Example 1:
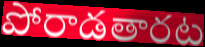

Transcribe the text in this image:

పోరాడతారట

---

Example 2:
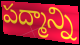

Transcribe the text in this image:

పద్మాన్ని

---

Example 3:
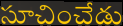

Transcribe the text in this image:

సూచించేడు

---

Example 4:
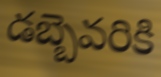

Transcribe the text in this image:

డబ్బెవరికి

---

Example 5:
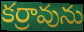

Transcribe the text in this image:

కర్రావును